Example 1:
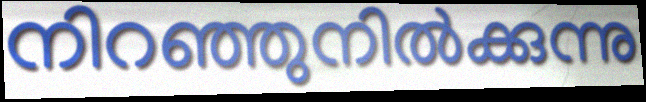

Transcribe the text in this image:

നിറഞ്ഞുനിൽക്കുന്നു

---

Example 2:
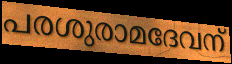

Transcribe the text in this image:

പരശുരാമദേവന്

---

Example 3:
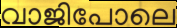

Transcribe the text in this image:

വാജിപോലെ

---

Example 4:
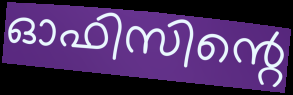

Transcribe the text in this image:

ഓഫിസിന്റെ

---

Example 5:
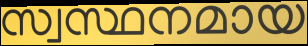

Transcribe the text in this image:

സ്വസ്ഥനമായ